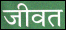
जीवत